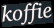
koffie